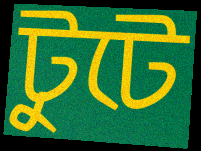
টুটে